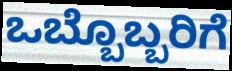
ಒಬ್ಬೊಬ್ಬರಿಗೆ